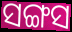
ସଙ୍ଗସ